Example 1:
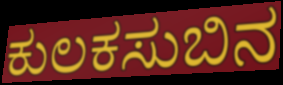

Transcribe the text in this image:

ಕುಲಕಸುಬಿನ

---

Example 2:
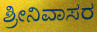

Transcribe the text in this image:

ಶ್ರೀನಿವಾಸರ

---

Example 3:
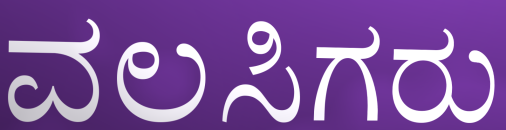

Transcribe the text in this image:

ವಲಸಿಗರು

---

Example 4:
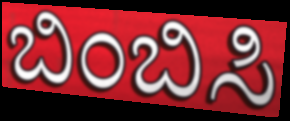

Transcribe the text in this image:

ಬಿಂಬಿಸಿ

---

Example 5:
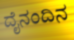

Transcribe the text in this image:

ದೈನಂದಿನ